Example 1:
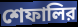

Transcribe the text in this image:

শেফালির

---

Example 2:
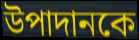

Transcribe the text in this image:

উপাদানকে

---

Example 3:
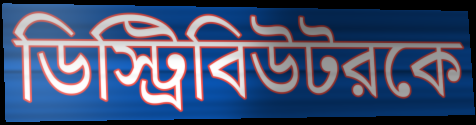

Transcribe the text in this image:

ডিস্ট্রিবিউটরকে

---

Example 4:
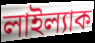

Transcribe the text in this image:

লাইল্যাক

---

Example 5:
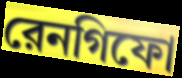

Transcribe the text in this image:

রেনগিফো